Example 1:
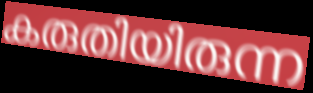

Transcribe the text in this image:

കരുതിയിരുന്ന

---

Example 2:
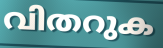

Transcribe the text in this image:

വിതറുക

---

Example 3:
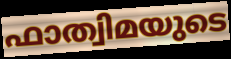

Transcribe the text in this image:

ഫാത്വിമയുടെ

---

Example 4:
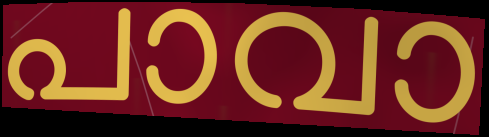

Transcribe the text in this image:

പാവാ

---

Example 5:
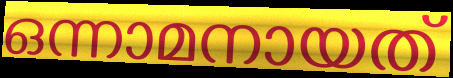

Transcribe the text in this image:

ഒന്നാമനായത്